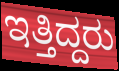
ಇತ್ತಿದ್ದರು